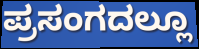
ಪ್ರಸಂಗದಲ್ಲೂ